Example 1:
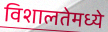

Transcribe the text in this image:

विशालतेमध्ये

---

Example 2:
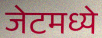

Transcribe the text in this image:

जेटमध्ये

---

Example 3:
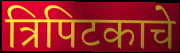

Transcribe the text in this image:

त्रिपिटकाचे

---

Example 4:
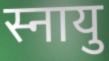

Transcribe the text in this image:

स्नायु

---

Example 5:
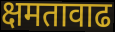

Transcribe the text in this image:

क्षमतावाढ